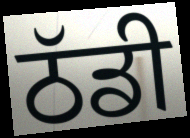
ਠੱਡੀ